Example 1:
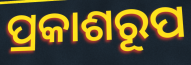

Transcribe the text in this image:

ପ୍ରକାଶରୂପ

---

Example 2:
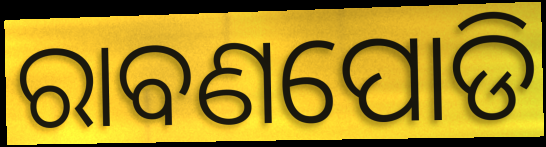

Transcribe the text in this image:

ରାବଣପୋଡି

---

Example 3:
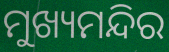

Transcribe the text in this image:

ମୁଖ୍ୟମନ୍ଦିର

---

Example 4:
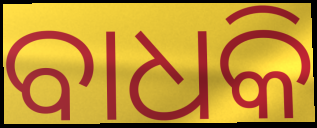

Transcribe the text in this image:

ବାଧକି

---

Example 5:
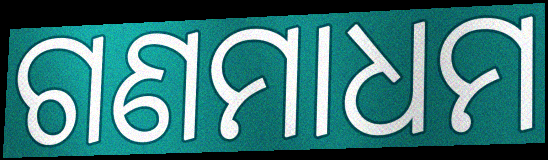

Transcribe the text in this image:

ଗଣମାଧମ